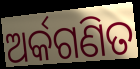
ଅର୍କଗଣିତ